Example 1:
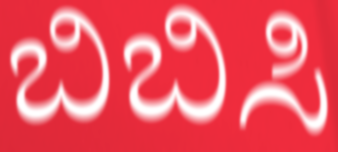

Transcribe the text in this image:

ಬಿಬಿಸಿ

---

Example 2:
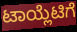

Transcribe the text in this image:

ಟಾಯ್ಲೆಟಿಗೆ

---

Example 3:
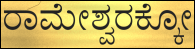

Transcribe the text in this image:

ರಾಮೇಶ್ವರಕ್ಕೋ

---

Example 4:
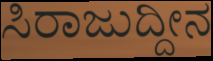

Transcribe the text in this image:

ಸಿರಾಜುದ್ದೀನ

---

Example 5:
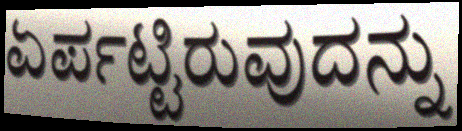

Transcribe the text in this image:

ಏರ್ಪಟ್ಟಿರುವುದನ್ನು